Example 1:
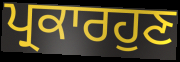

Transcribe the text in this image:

ਪ੍ਰਕਾਰਹੁਣ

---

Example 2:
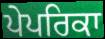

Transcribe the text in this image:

ਪੇਪਰਿਕਾ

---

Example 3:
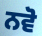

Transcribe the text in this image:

ਨਵੋ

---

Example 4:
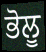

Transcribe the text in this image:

ਭੋਲੂ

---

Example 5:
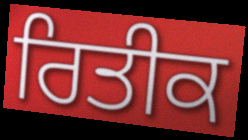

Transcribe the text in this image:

ਰਿਤੀਕ